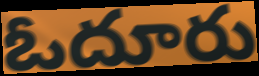
ఓదూరు